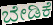
ಬೇಡಿಕೆ